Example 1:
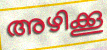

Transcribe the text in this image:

അഴിക്കൂ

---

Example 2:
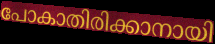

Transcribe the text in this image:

പോകാതിരിക്കാനായി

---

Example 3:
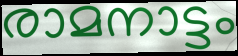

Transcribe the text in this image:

രാമനാട്ടം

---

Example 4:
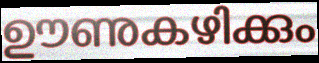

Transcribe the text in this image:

ഊണുകഴിക്കും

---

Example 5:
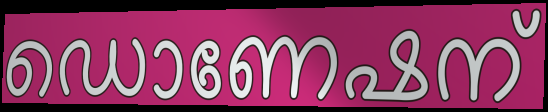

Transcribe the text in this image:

ഡൊണേഷന്